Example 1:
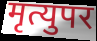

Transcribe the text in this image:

मृत्युपर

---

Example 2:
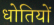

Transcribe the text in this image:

धोतियों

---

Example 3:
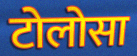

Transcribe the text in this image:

टोलोसा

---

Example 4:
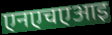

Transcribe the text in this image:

एनएचएआइ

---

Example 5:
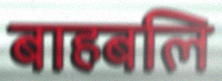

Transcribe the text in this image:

बाहबलि